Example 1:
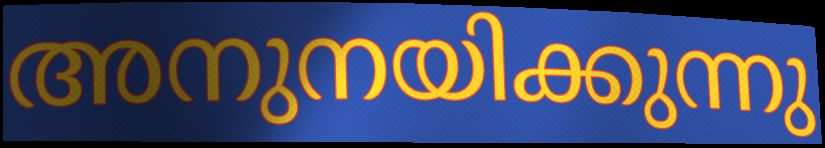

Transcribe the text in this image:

അനുനയിക്കുന്നു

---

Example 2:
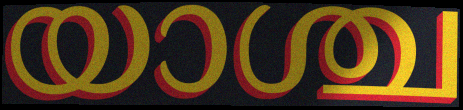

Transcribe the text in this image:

യാശ്ച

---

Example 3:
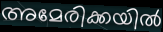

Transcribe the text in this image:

അമേരിക്കയിൽ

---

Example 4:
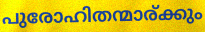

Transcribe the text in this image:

പുരോഹിതന്മാര്ക്കും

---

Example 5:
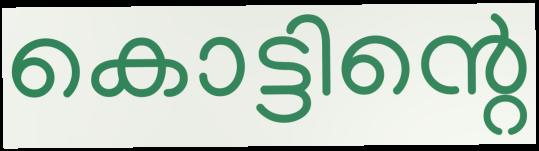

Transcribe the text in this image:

കൊട്ടിന്റെ